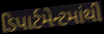
ડિપાર્ટમેન્ટમાંથી